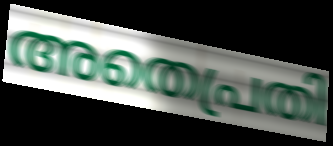
അതെപ്രതി